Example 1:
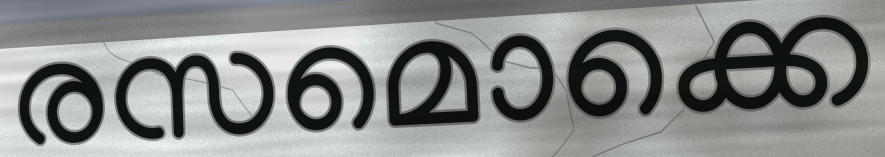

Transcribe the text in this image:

രസമൊക്കെ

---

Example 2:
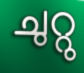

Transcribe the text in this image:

ചുറ്റു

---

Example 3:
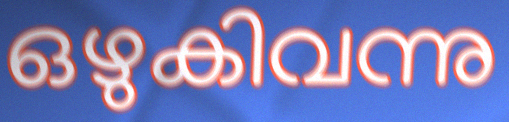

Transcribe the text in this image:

ഒഴുകിവന്നു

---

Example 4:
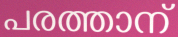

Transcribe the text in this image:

പരത്താന്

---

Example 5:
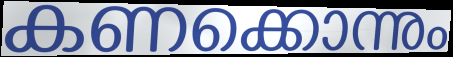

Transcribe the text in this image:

കണക്കൊന്നും